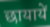
छायायें